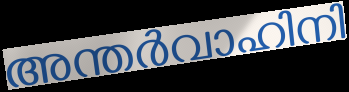
അന്തർവാഹിനി